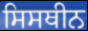
ਸਿਸਥੀਨ